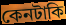
কেনটাকি